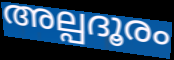
അല്പദൂരം